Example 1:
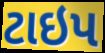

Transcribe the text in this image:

ટાઇપ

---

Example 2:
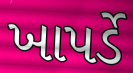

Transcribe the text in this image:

ખાપર્ડે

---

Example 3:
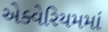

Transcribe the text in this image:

એક્વેરિયમમાં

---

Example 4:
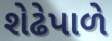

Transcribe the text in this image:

શેઢેપાળે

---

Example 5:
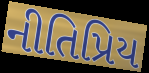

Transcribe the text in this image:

નીતિપ્રિય